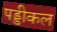
पड्डीकल